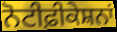
ਨੋਟੀਫ਼ੀਕੇਸ਼ਨਾਂ